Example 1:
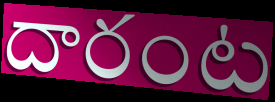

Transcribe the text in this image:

దారంట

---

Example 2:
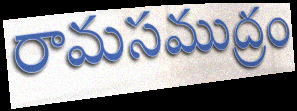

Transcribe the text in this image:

రామసముద్రం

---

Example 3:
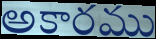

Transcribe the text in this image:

అకారము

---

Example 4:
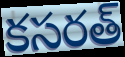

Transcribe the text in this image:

కసరత్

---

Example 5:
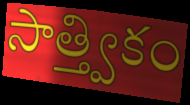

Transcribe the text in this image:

సాత్త్వికం